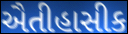
ઐતીહાસીક